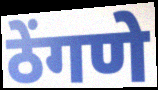
ठेंगणे